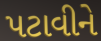
પટાવીને